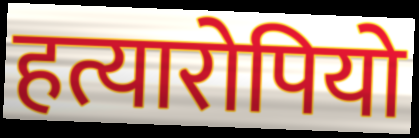
हत्यारोपियो